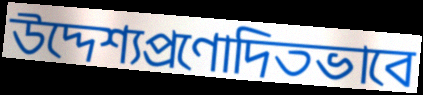
উদ্দেশ্যপ্রণোদিতভাবে